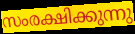
സംരക്ഷിക്കുന്നു